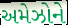
અમેઝોને